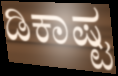
ಡಿಕಾಷ್ಟ